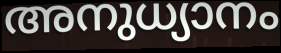
അനുധ്യാനം